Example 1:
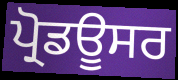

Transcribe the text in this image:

ਪ੍ਰੋਡਊਸਰ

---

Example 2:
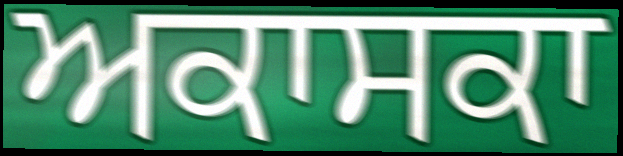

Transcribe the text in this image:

ਅਕਾਸਕਾ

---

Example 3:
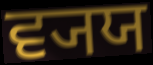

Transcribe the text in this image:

ਵ੍ਯਯ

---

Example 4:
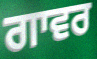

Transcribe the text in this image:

ਗਾਵਰ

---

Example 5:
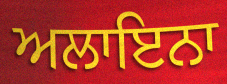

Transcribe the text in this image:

ਅਲਾਇਨਾ